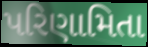
પરિણામિતા